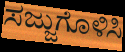
ಸಜ್ಜುಗೊಳಿಸಿ